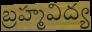
బ్రహ్మవిద్య